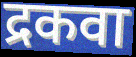
द्रकवा